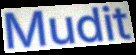
Mudit